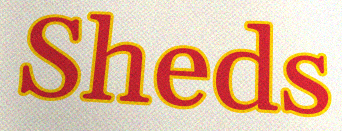
Sheds